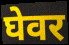
घेवर